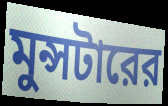
মুন্সটারের